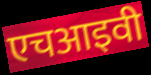
एचआइवी